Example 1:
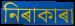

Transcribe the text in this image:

নিৰাকাৰা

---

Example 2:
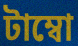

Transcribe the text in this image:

টাম্বো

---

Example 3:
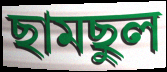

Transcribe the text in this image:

ছামছুল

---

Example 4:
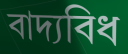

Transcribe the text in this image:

বাদ্যবিধ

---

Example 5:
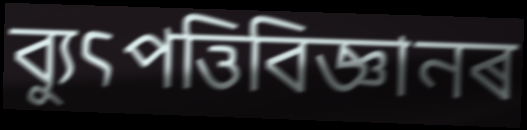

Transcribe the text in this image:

ব্যুৎপত্তিবিজ্ঞানৰ